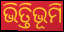
ଭିତ୍ତିଭୂମି